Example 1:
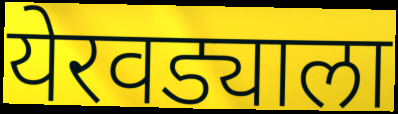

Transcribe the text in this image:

येरवड्याला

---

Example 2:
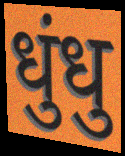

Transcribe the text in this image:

धुंधु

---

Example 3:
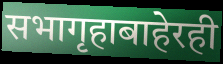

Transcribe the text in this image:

सभागृहाबाहेरही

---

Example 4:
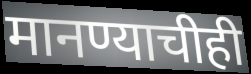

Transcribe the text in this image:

मानण्याचीही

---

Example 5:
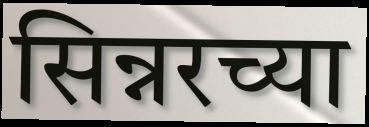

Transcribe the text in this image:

सिन्नरच्या